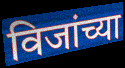
विजांच्या